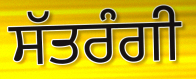
ਸੱਤਰੰਗੀ